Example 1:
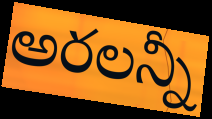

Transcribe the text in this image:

అరలన్నీ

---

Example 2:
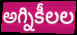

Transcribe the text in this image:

అగ్నికీలల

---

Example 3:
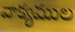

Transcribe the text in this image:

వాక్యముల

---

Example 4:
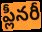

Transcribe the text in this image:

ప్లీనరీ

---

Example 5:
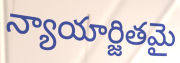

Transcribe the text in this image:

న్యాయార్జితమై